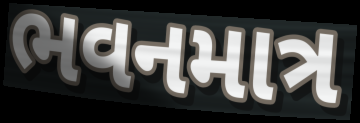
ભવનમાત્ર